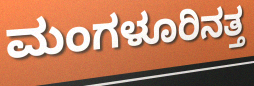
ಮಂಗಳೂರಿನತ್ತ